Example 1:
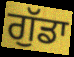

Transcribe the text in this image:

ਗੁੱਡਾ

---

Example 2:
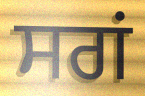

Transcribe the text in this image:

ਸਗਂ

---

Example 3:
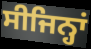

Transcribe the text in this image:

ਸੀਜਿਨ੍ਹਾਂ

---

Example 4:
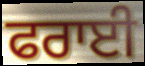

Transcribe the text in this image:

ਫਰਾਈ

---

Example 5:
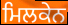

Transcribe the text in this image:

ਮਿਲਕੇਨ